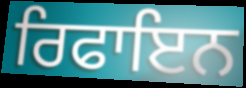
ਰਿਫਾਇਨ